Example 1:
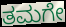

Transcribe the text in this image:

ತಮಗೇ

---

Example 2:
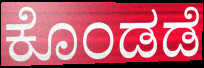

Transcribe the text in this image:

ಕೊಂಡಡೆ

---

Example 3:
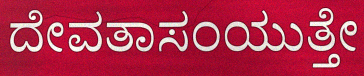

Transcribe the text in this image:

ದೇವತಾಸಂಯುತ್ತೇ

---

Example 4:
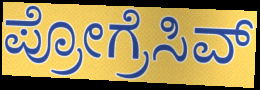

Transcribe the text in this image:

ಪ್ರೋಗ್ರೆಸಿವ್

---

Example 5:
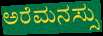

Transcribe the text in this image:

ಅರೆಮನಸ್ಸು